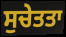
ਸੁਚੇਤਤਾ